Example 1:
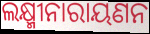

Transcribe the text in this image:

ଲକ୍ଷ୍ମୀନାରାୟଣନ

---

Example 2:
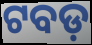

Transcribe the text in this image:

ଟବଡ଼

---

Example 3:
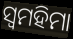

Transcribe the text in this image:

ସ୍ୱମହିମା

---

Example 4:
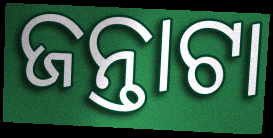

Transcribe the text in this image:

ଜନ୍ତାଟା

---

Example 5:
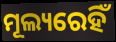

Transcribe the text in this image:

ମୂଲ୍ୟରେହିଁ